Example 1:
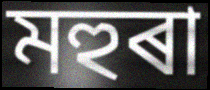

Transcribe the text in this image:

মহুৰা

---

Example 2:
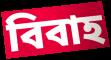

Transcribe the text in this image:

বিবাহ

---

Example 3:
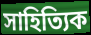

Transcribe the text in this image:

সাহিত্যিক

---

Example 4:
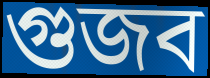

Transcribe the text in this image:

গুজব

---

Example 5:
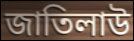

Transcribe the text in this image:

জাতিলাউ